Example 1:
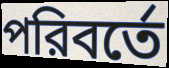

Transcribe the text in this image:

পরিবর্তে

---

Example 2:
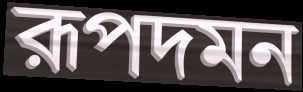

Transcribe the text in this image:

রূপদমন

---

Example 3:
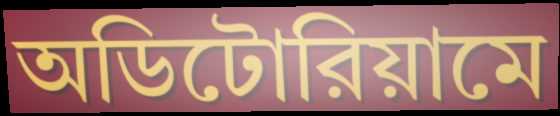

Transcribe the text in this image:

অডিটোরিয়ামে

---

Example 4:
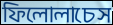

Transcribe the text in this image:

ফিলোলাচেস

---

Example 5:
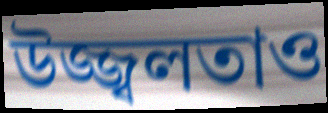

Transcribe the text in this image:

উজ্জ্বলতাও